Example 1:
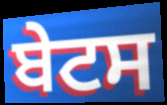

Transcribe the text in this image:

ਬੇਟਸ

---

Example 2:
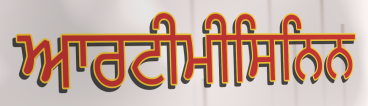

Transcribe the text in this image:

ਆਰਟੀਮੀਸਿਨਿਨ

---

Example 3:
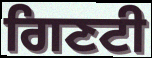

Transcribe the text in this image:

ਗਿਣਟੀ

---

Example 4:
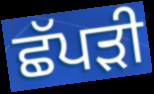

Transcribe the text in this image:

ਛੱਪੜੀ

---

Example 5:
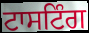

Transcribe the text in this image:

ਟਾਸਟਿੰਗ